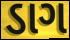
ડાગ